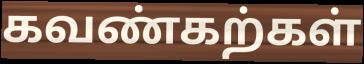
கவண்கற்கள்